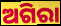
ଅଗିରା